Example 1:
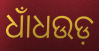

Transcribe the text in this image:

ଧାଁଧଉଡ଼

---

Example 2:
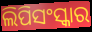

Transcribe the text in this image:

ଲିପିସଂସ୍କାର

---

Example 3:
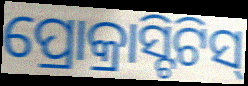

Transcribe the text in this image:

ପ୍ରୋକ୍ରାସ୍ଟିଟିସ୍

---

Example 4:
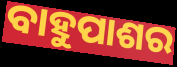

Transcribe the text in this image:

ବାହୁପାଶର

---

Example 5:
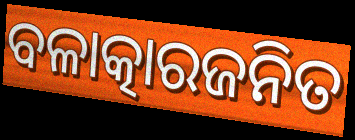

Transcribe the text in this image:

ବଳାତ୍କାରଜନିତ